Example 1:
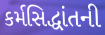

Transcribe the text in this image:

કર્મસિદ્ધાંતની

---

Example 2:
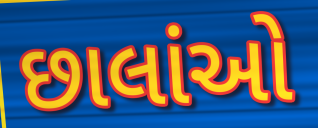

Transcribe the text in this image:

છાલાંઓ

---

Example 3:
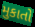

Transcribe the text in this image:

મુકાતો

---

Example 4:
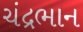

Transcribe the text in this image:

ચંદ્રભાન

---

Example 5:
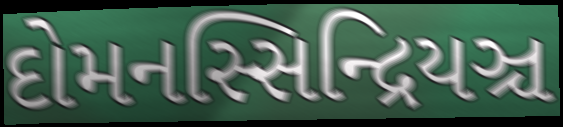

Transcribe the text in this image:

દોમનસ્સિન્દ્રિયઞ્ચ